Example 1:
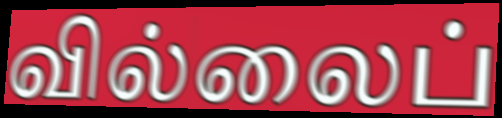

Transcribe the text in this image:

வில்லைப்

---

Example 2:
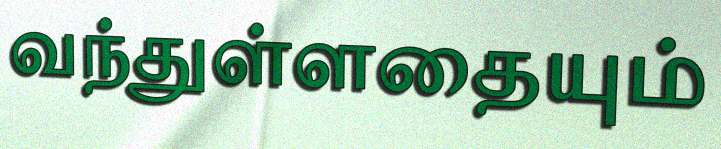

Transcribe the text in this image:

வந்துள்ளதையும்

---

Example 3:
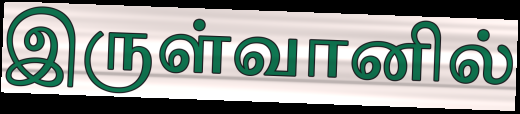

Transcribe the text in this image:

இருள்வானில்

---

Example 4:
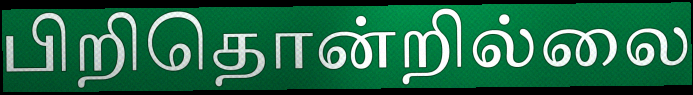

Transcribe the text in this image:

பிறிதொன்றில்லை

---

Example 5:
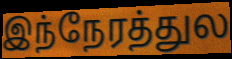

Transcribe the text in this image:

இந்நேரத்துல